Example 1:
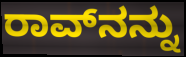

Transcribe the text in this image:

ರಾವ್‌ನನ್ನು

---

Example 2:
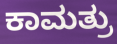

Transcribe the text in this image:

ಕಾಮತ್ರು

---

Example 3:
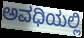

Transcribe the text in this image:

ಅವಧಿಯಲ್ಲಿ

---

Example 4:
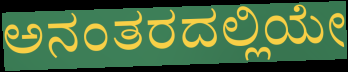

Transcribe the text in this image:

ಅನಂತರದಲ್ಲಿಯೇ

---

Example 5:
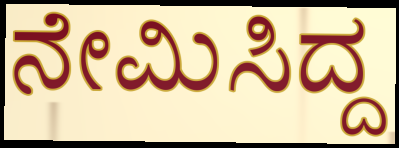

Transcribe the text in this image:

ನೇಮಿಸಿದ್ದ